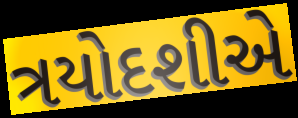
ત્રયોદશીએ